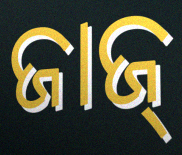
ଜାଜ୍